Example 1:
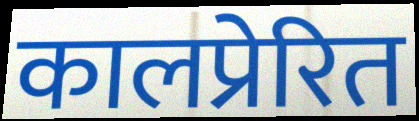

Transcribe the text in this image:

कालप्रेरित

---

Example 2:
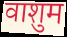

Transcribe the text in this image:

वाशुम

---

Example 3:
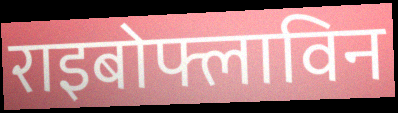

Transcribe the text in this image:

राइबोफ्लाविन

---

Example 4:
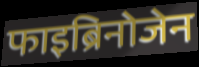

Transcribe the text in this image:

फाइब्रिनोजेन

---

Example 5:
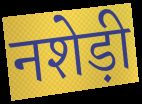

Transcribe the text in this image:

नशेड़ी